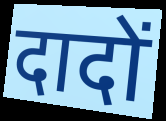
दादों